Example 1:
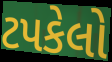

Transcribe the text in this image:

ટપકેલો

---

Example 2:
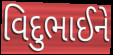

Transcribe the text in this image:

વિદુભાઈને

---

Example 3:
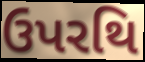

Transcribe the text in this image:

ઉપરથિ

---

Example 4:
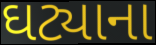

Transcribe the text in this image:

ઘટ્યાના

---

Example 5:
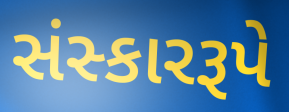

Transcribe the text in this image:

સંસ્કારરૂપે